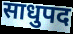
साधुपद